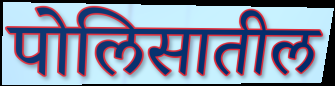
पोलिसातील